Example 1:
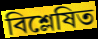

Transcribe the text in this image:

বিশ্লেষিত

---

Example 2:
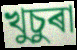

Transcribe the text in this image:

খুচুৰা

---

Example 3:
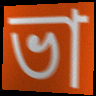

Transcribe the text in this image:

ভা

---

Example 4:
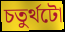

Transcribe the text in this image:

চতুৰ্থটো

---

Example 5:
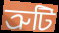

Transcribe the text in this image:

ত্ৰুটি